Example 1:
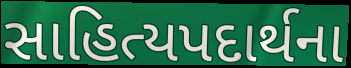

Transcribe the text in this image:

સાહિત્યપદાર્થના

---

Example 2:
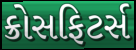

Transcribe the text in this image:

ક્રોસફિટર્સ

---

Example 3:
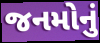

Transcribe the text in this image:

જનમોનું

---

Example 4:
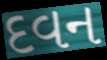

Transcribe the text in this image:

દવન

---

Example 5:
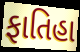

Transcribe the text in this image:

ફાતિહા